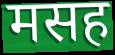
मसह